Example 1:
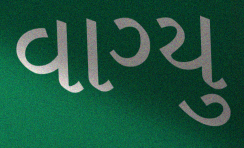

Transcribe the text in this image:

વાગ્યુ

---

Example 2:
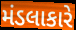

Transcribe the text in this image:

મંડલાકારે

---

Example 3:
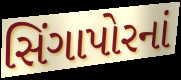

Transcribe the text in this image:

સિંગાપોરનાં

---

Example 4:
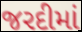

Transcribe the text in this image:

જરદીમાં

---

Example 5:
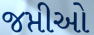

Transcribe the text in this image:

જપ્તીઓ